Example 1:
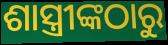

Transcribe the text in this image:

ଶାସ୍ତ୍ରୀଙ୍କଠାରୁ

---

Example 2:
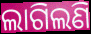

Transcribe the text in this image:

ଲାଗିଲଣି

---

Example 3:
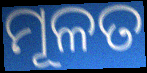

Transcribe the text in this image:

ମୂଳତ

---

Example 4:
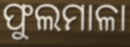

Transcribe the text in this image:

ଫୁଲମାଳା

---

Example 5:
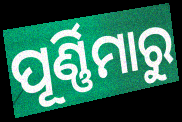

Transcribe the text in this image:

ପୂର୍ଣ୍ଣିମାରୁ